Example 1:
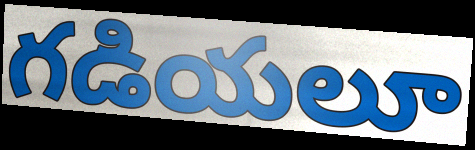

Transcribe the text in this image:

గడియలూ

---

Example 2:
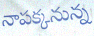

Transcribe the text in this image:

నాపక్కనున్న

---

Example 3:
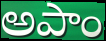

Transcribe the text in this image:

అపాం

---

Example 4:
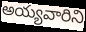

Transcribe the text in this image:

అయ్యవారిని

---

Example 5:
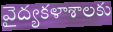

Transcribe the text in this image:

వైద్యకళాశాలకు